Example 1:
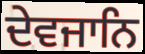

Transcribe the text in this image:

ਦੇਵਜਾਨਿ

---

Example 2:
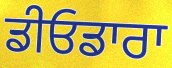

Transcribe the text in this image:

ਡੀਓਡਾਰਾ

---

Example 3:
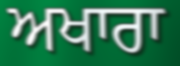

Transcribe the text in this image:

ਅਖਾਰਾ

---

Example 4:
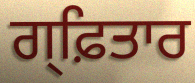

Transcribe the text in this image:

ਗ੍ਫ਼ਿਤਾਰ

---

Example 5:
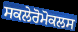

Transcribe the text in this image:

ਸਕਲੇਰੋਮੋਕਲਸ